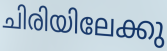
ചിരിയിലേക്കു